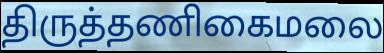
திருத்தணிகைமலை